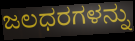
ಜಲಧರಗಳನ್ನು